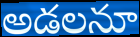
అడలనూ